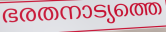
ഭരതനാട്യത്തെ